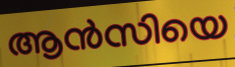
ആൻസിയെ